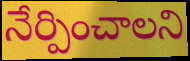
నేర్పించాలని